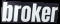
broker